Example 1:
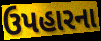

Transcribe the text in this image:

ઉપહારના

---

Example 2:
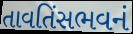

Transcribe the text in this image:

તાવતિંસભવનં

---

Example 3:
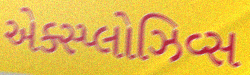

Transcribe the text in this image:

એક્સ્પ્લોઝિવ્સ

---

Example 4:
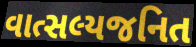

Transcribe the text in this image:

વાત્સલ્યજનિત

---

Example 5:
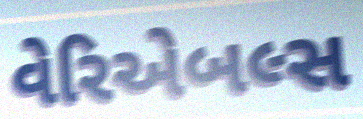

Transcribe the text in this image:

વેરિએબલ્સ